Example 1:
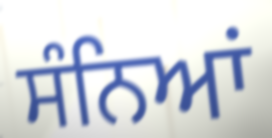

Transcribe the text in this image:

ਸੰਨਿਆਂ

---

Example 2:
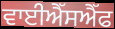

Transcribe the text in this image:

ਵਾਈਐੱਸਐੱਫ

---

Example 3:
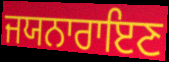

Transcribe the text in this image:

ਜਯਨਾਰਾਇਣ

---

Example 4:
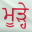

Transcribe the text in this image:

ਮੂੜ੍ਹੇ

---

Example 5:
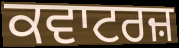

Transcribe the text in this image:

ਕਵਾਟਰਜ਼